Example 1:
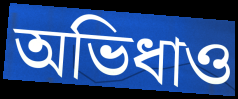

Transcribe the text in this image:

অভিধাও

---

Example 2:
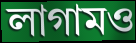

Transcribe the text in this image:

লাগামও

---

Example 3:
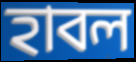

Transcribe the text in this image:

হাবল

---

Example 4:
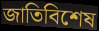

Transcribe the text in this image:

জাতিবিশেষ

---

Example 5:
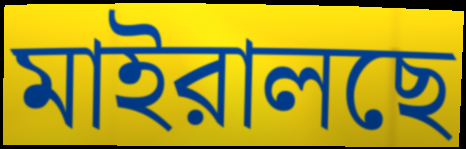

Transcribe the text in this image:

মাইরালছে